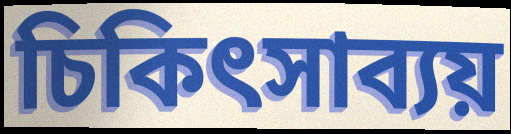
চিকিৎসাব্যয়